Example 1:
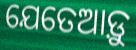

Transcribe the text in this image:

ଯେତେଆଡ଼ୁ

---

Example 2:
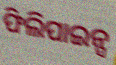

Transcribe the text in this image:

ଫିଲିପାଇନ୍ସ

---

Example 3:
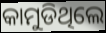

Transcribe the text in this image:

କାମୁଡିଥିଲେ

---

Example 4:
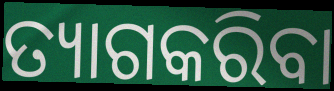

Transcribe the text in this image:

ତ୍ୟାଗକରିବା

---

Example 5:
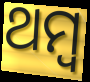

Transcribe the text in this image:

ଥମ୍ବ